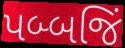
પબ્બજિં